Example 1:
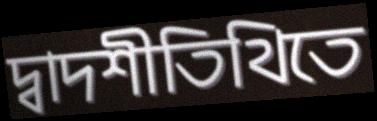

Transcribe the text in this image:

দ্বাদশীতিথিতে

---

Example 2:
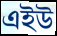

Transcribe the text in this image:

এইউ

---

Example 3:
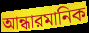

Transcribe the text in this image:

আন্ধারমানিক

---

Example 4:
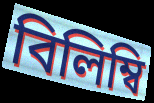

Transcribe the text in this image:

বিলিম্বি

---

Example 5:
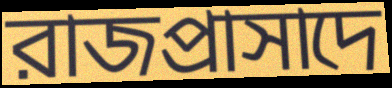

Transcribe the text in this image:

রাজপ্রাসাদে